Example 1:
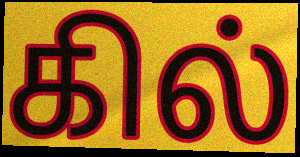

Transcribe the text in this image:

கில்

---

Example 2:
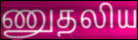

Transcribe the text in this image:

ணுதலிய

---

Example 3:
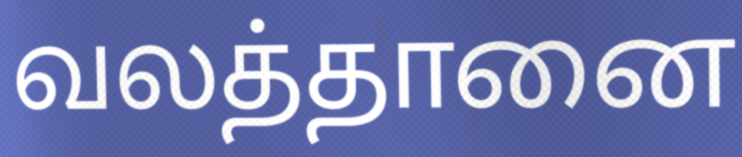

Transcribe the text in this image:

வலத்தானை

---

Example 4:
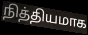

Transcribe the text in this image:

நித்தியமாக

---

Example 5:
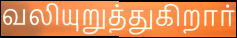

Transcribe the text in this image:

வலியுறுத்துகிறார்